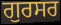
ਗੁਰਸਰ